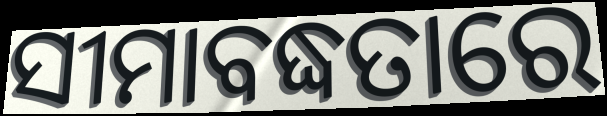
ସୀମାବଦ୍ଧତାରେ